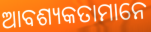
ଆବଶ୍ୟକତାମାନେ